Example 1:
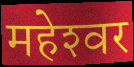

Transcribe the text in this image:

महेश्वर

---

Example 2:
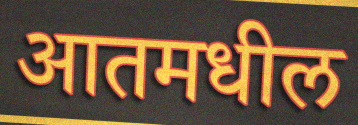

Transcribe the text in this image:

आतमधील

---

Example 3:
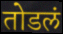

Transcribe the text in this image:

तोडलं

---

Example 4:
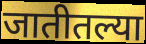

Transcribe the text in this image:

जातीतल्या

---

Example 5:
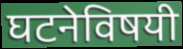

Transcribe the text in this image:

घटनेविषयी